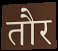
तौर